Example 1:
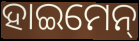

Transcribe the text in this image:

ହାଇମେନ୍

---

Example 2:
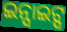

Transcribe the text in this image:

ଇନ୍ସାଇଟ୍ସ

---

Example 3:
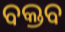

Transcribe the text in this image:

ବକ୍ତବ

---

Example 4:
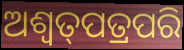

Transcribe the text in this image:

ଅଶ୍ଵତ୍‌ପତ୍ରପରି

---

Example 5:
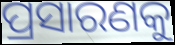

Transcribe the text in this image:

ପ୍ରସାରଣକୁ